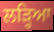
ਲੜ੍ਹਿਆ